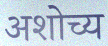
अशोच्य